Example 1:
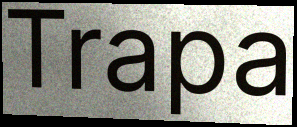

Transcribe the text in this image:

Trapa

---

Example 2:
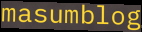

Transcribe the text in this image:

masumblog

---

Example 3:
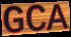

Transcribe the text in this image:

GCA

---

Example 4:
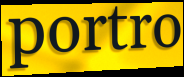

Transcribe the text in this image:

portro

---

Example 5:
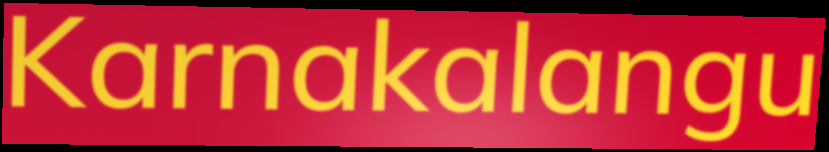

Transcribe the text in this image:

Karnakalangu